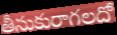
తీసుకురాగలదో